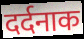
दर्दनाक